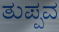
ತುಪ್ಪವ